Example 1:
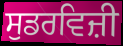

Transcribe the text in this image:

ਸੁਡਰਵਿਜ਼ੀ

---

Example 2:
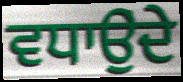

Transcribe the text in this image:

ਵਧਾਉੁਂਦੇ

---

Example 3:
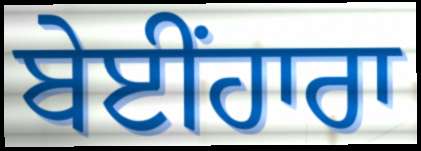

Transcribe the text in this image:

ਬੇਈਂਹਾਰਾ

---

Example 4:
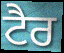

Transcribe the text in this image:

ਟੈਰ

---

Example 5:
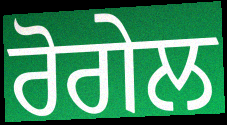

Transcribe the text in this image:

ਰੋਗੇਲ